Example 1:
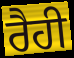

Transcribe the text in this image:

ਰੈਹੀ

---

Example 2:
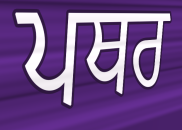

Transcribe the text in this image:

ਪਥਰ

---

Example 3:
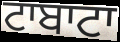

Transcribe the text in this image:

ਟਾਬਾਟਾ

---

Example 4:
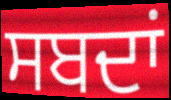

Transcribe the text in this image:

ਸਬਦਾਂ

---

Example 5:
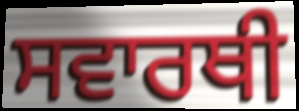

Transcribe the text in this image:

ਸਵਾਰਥੀ